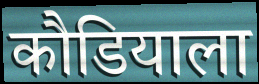
कौडियाला